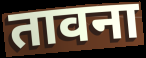
तावना